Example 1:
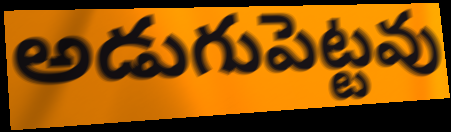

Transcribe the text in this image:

అడుగుపెట్టవు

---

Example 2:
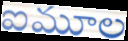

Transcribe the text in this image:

ఐమూల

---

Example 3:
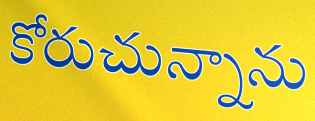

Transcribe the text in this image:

కోరుచున్నాను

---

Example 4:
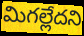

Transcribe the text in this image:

మిగల్లేదని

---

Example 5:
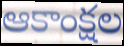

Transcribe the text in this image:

ఆకాంక్షల